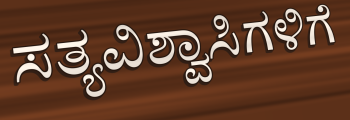
ಸತ್ಯವಿಶ್ವಾಸಿಗಳಿಗೆ